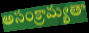
అసంక్రామ్యతా